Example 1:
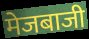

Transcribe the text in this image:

मेजबाजी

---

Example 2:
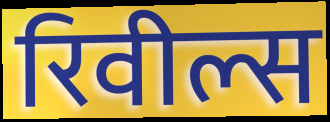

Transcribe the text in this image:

रिवील्स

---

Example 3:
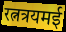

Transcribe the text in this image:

रत्नत्रयमई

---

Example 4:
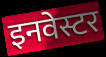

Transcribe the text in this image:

इनवेस्टर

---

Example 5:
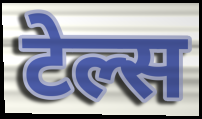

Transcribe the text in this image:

टेल्स